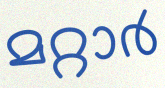
മറ്റാർ